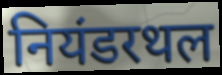
नियंडरथल